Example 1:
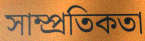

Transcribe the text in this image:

সাম্প্রতিকতা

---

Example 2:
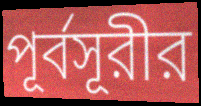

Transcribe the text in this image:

পূর্বসূরীর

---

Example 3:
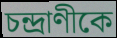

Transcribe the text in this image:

চন্দ্রাণীকে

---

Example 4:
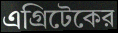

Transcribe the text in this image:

এগ্রিটেকের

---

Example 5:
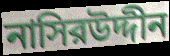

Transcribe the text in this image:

নাসিরউদ্দীন